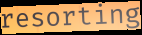
resorting